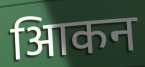
आिकन